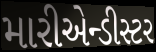
મારીએન્ડીસ્ટર